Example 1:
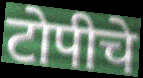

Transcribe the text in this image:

टोपीचे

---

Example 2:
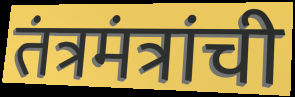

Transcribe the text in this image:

तंत्रमंत्रांची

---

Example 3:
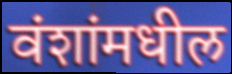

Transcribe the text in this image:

वंशांमधील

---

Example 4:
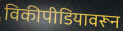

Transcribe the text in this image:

विकीपीडियावरून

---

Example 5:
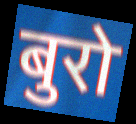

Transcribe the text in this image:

बुरो